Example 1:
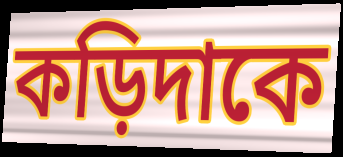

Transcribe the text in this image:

কড়িদাকে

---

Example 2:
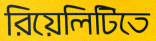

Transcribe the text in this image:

রিয়েলিটিতে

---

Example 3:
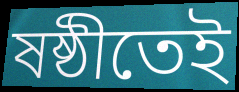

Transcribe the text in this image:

ষষ্ঠীতেই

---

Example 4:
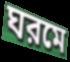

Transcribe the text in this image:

ঘরমে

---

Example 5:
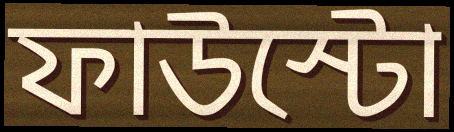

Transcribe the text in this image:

ফাউস্টো